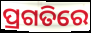
ପ୍ରଗତିରେ